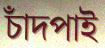
চাঁদপাই